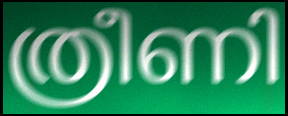
ത്രീണി